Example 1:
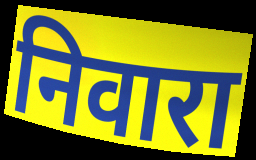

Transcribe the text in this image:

निवारा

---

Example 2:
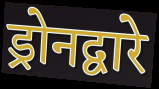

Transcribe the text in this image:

ड्रोनद्वारे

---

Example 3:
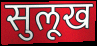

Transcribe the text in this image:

सुलूख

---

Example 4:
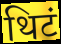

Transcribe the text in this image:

थिटं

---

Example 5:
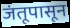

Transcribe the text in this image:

जंतूपासून